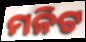
ମନିଟ